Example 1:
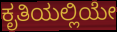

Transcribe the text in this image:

ಕೃತಿಯಲ್ಲಿಯೇ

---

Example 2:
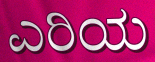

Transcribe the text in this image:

ಎರಿಯ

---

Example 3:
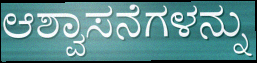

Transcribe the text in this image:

ಆಶ್ವಾಸನೆಗಳನ್ನು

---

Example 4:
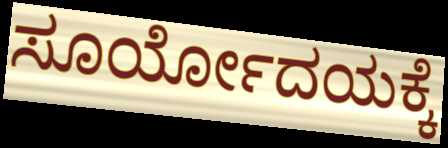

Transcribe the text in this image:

ಸೂರ್ಯೋದಯಕ್ಕೆ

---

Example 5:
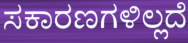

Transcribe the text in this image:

ಸಕಾರಣಗಳಿಲ್ಲದೆ